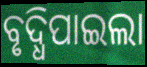
ବୃଦ୍ଧିପାଇଲା